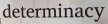
determinacy